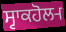
ਸ੍ਟਾਕਹੋਲ੍ਮ